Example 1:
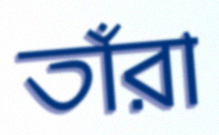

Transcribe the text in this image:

তাঁরা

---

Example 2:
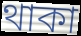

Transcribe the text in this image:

থাকা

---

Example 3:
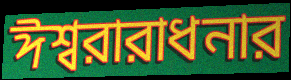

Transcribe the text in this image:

ঈশ্বরারাধনার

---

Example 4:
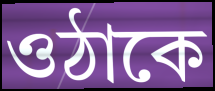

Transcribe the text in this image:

ওঠাকে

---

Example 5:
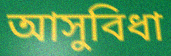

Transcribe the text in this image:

আসুবিধা